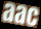
aac